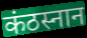
कंठस्नान